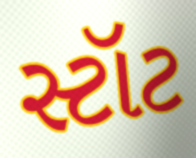
સ્ટૉટ